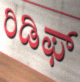
ರಿಡಿಫ್